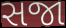
સજા